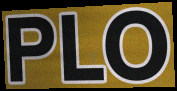
PLO